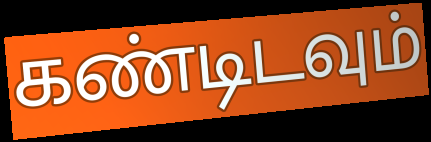
கண்டிடவும்